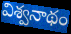
విశ్వనాథం